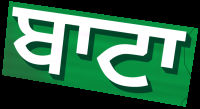
ਬਾਟਾ